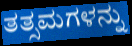
ತತ್ಸಮಗಳನ್ನು